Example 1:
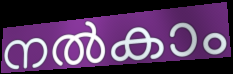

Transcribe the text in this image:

നൽകാം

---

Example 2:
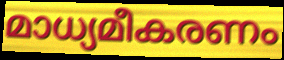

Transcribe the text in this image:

മാധ്യമീകരണം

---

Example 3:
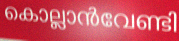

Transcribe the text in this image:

കൊല്ലാൻവേണ്ടി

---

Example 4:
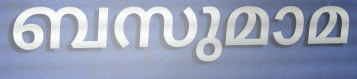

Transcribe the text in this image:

ബസുമാമ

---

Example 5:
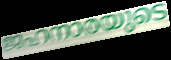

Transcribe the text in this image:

ജഹനാരയുടെ